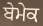
ਬੇਮੇਕ